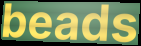
beads